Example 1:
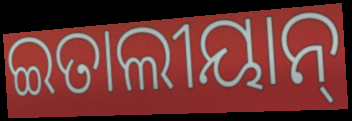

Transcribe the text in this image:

ଇତାଲୀୟାନ୍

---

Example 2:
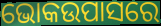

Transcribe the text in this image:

ଭୋକଉପାସରେ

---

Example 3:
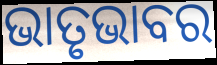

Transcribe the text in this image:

ଭାତୃଭାବର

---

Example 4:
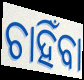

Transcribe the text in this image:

ଚାହିଁବା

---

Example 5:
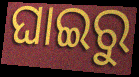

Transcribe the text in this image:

ଘାଇରୁ